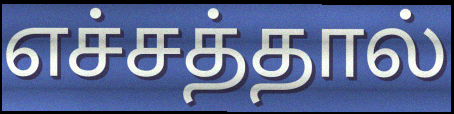
எச்சத்தால்